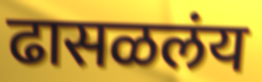
ढासळलंय